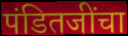
पंडितजींचा